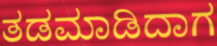
ತಡಮಾಡಿದಾಗ